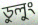
ডুলুং